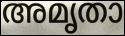
അമൃതാ